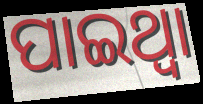
ପାଇଥ୍ବା